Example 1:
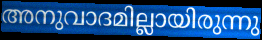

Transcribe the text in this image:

അനുവാദമില്ലായിരുന്നു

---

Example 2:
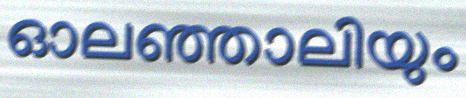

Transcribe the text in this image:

ഓലഞ്ഞാലിയും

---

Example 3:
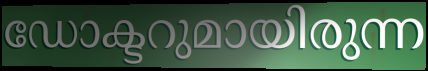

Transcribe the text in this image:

ഡോക്ടറുമായിരുന്ന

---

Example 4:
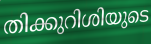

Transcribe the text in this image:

തിക്കുറിശിയുടെ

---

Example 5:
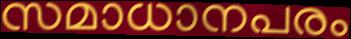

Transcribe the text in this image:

സമാധാനപരം